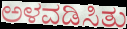
ಅಳವಡಿಸಿತು